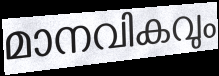
മാനവികവും